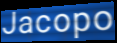
Jacopo